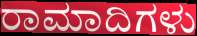
ರಾಮಾದಿಗಳು